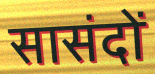
सासंदों